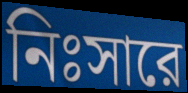
নিঃসারে